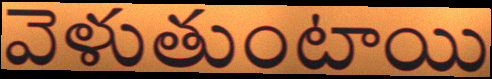
వెళుతుంటాయి